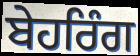
ਬੇਹਰਿੰਗ